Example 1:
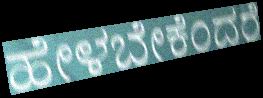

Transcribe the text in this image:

ಹೇಳಬೇಕೆಂದರೆ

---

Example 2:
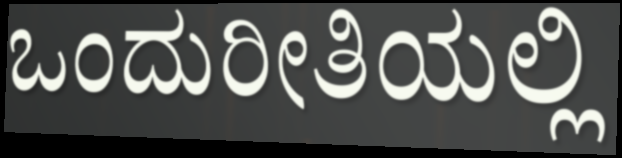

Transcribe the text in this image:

ಒಂದುರೀತಿಯಲ್ಲಿ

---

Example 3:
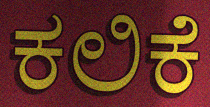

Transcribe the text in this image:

ಕಲಿಕೆ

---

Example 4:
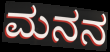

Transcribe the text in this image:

ಮನನ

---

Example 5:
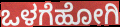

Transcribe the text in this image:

ಒಳಗೆಹೋಗಿ